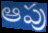
ఆపు